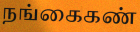
நங்கைகண்